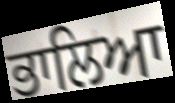
ਭਾਲਿਆ